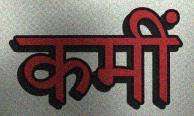
कमीं